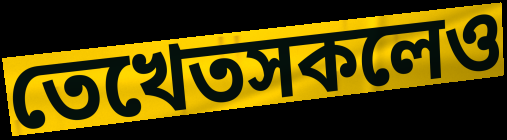
তেখেতসকলেও